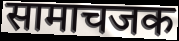
सामाचजक